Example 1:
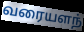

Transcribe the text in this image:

வரையளந்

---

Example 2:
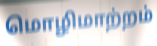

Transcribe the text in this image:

மொழிமாற்றம்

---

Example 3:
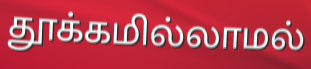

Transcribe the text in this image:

தூக்கமில்லாமல்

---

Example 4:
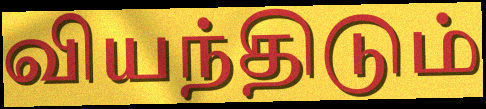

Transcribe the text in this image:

வியந்திடும்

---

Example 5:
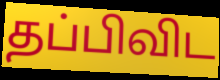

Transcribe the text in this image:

தப்பிவிட